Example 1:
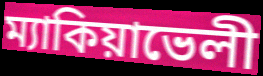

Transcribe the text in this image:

ম্যাকিয়াভেলী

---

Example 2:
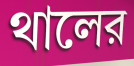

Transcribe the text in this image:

থালের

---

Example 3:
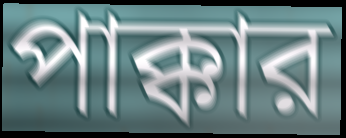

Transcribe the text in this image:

পাক্কার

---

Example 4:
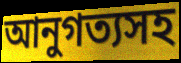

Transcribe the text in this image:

আনুগত্যসহ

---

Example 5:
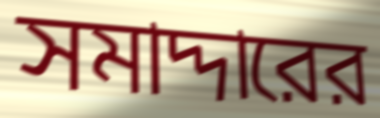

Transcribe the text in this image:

সমাদ্দারের